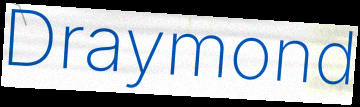
Draymond